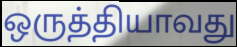
ஒருத்தியாவது